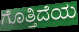
ಗೊತ್ತಿದೆಯ